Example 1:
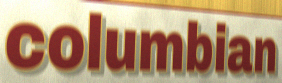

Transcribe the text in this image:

columbian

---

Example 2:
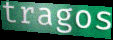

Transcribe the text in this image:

tragos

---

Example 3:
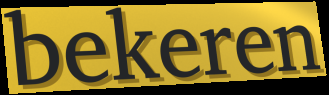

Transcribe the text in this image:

bekeren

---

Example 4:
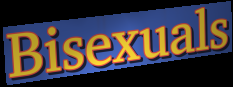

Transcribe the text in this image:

Bisexuals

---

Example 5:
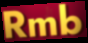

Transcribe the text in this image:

Rmb